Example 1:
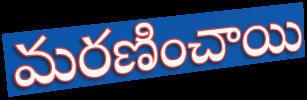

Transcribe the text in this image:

మరణించాయి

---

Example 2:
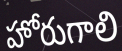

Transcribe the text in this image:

హోరుగాలి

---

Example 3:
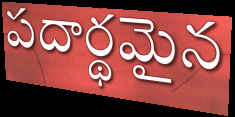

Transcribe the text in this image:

పదార్థమైన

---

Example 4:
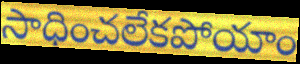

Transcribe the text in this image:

సాధించలేకపోయాం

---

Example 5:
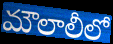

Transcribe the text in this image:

మౌలాలీలో